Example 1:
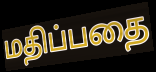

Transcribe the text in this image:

மதிப்பதை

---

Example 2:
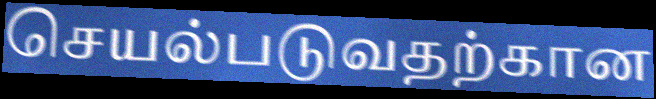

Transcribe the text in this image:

செயல்படுவதற்கான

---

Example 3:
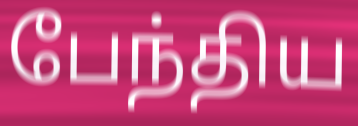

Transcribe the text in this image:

பேந்திய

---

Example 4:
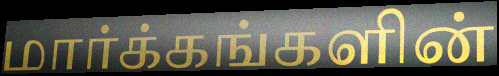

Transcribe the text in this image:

மார்க்கங்களின்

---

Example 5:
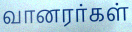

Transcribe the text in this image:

வானரர்கள்